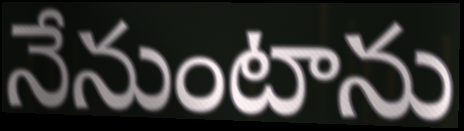
నేనుంటాను